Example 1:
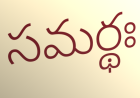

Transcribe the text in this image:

సమర్థః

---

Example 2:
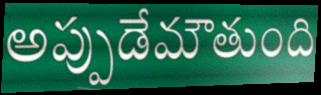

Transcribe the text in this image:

అప్పుడేమౌతుంది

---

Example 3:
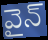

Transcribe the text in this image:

వైన్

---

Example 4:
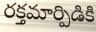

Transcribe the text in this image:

రక్తమార్పిడికి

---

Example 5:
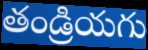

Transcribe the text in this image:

తండ్రియగు